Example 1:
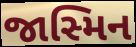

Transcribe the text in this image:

જાસ્મિન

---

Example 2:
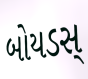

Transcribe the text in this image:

બોયડસ્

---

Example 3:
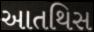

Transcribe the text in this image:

આતથિસ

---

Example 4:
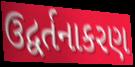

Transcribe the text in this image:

ઉદ્વર્તનાકરણ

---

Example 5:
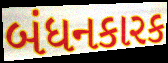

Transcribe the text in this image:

બંધનકારક